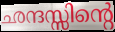
ഛന്ദസ്സിന്റെ